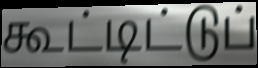
கூட்டிட்டுப்